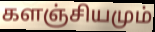
களஞ்சியமும்